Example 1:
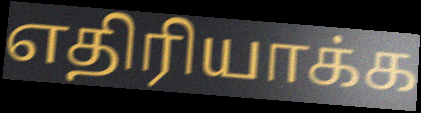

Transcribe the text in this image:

எதிரியாக்க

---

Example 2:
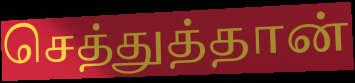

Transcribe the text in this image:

செத்துத்தான்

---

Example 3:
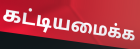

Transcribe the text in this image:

கட்டியமைக்க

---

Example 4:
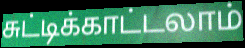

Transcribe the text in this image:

சுட்டிக்காட்டலாம்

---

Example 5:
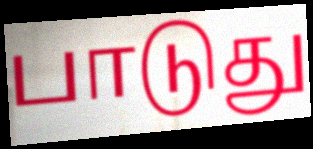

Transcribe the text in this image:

பாடுது